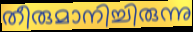
തീരുമാനിച്ചിരുന്നു